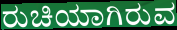
ರುಚಿಯಾಗಿರುವ